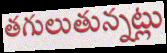
తగులుతున్నట్లు